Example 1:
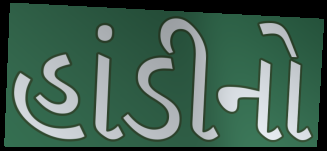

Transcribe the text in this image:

હાંડીનો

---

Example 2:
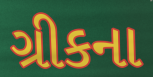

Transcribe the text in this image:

ગ્રીકના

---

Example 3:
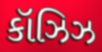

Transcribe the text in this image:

કૉઝિઝ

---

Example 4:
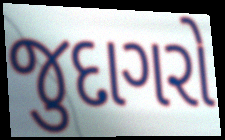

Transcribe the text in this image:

જુદાગરો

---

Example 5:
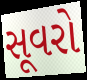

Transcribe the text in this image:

સૂવરો